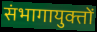
संभागायुक्तों